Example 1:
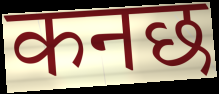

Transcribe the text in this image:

कनछ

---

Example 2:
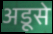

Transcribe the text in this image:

अडूसे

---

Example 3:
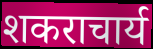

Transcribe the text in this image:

शकराचार्य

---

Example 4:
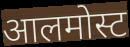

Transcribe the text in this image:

आलमोस्ट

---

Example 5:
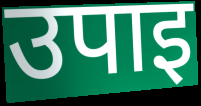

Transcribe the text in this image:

उपाइ